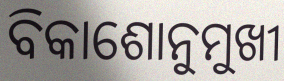
ବିକାଶୋନୁମୁଖୀ